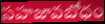
సహజావబోధం